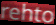
rehto